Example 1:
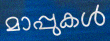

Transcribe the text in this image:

മാപ്പുകൾ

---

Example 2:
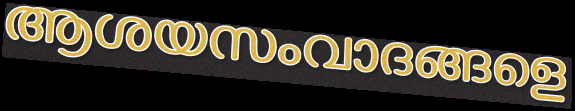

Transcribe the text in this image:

ആശയസംവാദങ്ങളെ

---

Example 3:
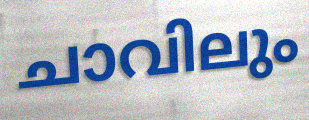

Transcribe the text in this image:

ചാവിലും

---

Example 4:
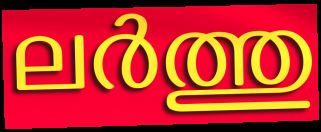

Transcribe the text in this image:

ലർത്തു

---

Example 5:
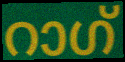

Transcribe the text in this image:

റാഗ്